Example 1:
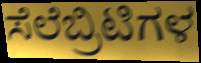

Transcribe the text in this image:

ಸೆಲೆಬ್ರಿಟಿಗಳ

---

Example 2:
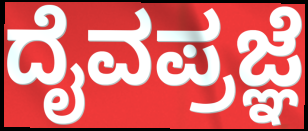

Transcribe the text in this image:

ದೈವಪ್ರಜ್ಞೆ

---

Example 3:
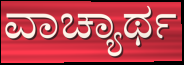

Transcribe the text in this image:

ವಾಚ್ಯಾರ್ಥ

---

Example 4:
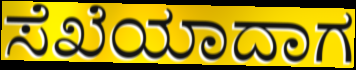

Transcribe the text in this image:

ಸೆಖೆಯಾದಾಗ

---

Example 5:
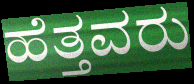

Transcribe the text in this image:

ಹೆತ್ತವರು